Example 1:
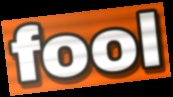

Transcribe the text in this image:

fool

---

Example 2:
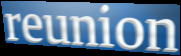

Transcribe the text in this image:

reunion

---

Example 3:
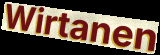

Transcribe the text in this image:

Wirtanen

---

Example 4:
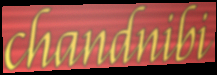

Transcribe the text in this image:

chandnibi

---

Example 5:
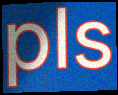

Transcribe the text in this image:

pls